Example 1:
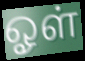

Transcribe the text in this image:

ஓள்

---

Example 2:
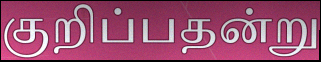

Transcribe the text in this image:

குறிப்பதன்று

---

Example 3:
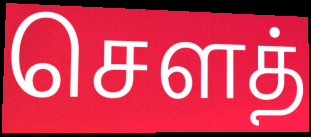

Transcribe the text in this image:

சௌத்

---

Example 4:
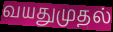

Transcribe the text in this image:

வயதுமுதல்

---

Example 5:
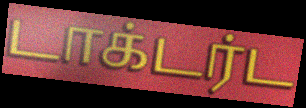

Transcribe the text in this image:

டாக்டர்ட